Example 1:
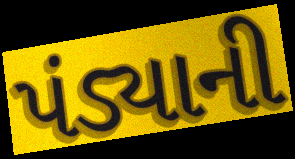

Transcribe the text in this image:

પંડ્યાની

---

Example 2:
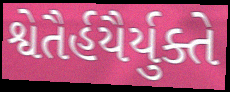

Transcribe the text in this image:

શ્વેતૈર્હયૈર્યુક્તે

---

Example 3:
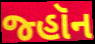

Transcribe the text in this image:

જ્હૉન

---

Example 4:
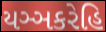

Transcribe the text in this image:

યઞ્ઞકરેહિ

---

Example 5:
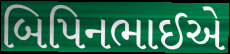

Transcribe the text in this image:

બિપિનભાઈએ